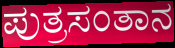
ಪುತ್ರಸಂತಾನ